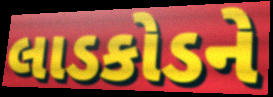
લાડકોડને